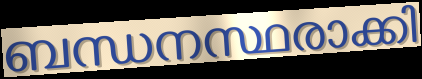
ബന്ധനസ്ഥരാക്കി